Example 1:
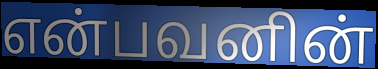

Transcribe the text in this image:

என்பவனின்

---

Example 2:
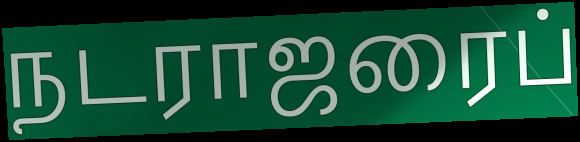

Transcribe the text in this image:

நடராஜரைப்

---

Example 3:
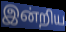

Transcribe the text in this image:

இன்றிய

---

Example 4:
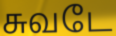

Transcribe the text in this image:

சுவடே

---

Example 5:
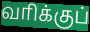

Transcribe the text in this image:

வரிக்குப்